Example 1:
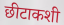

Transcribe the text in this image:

छीटाकशी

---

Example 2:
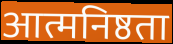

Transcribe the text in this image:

आत्मनिष्ठता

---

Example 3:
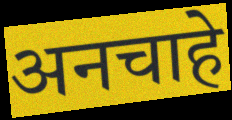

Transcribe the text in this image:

अनचाहे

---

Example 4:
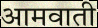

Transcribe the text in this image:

आमवाती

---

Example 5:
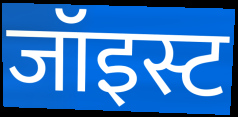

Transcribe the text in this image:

जॉइस्ट